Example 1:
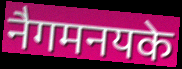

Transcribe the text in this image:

नैगमनयके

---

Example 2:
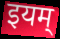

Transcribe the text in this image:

इयम्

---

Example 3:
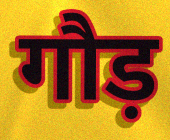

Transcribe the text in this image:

गौड़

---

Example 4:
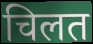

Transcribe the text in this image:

चिलत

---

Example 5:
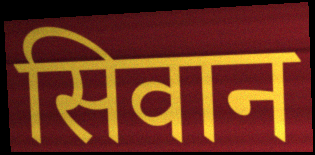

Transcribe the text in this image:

सिवान